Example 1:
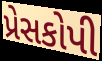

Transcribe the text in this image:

પ્રેસકોપી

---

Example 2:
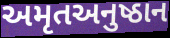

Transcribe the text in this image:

અમૃતઅનુષ્ઠાન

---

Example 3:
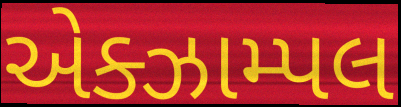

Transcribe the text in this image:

એક્ઝામ્પલ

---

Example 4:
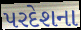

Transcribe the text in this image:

પરદેશના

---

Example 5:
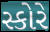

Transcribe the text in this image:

સ્કોરે